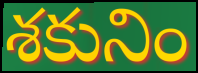
శకునిం